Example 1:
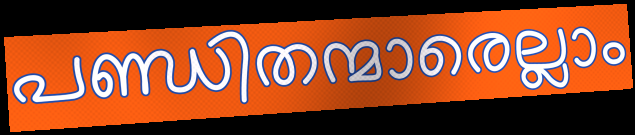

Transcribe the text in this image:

പണ്ഡിതന്മാരെല്ലാം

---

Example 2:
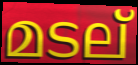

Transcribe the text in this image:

മടല്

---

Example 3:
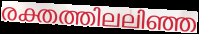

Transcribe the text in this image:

രക്തത്തിലലിഞ്ഞ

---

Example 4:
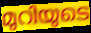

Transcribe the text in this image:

മുറിയുടെ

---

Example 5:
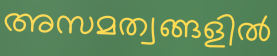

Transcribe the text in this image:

അസമത്വങ്ങളിൽ